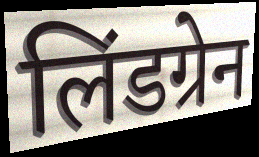
लिंडग्रेन